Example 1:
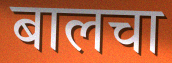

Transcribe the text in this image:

बालचा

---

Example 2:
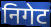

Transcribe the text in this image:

निगेट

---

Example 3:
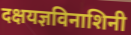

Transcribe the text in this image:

दक्षयज्ञविनाशिनी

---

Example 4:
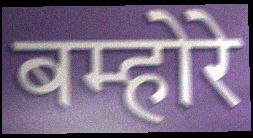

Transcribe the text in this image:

बम्होरे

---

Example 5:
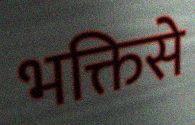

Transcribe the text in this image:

भक्तिसे